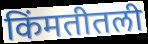
किंमतीतली